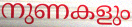
നുണകളും